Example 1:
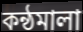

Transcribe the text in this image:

কন্ঠমালা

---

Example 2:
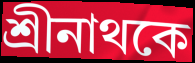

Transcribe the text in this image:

শ্রীনাথকে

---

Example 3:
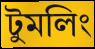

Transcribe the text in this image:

টুমলিং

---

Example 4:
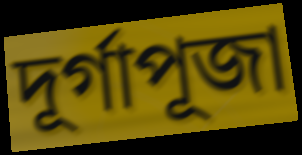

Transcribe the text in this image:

দূর্গাপূজা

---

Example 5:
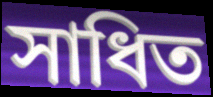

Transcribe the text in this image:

সাধিত